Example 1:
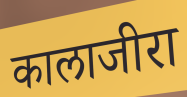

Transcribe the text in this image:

कालाजीरा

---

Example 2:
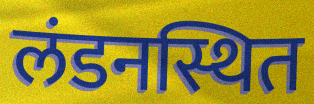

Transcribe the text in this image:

लंडनस्थित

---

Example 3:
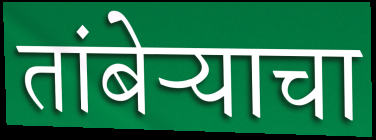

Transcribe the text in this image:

तांबेऱ्याचा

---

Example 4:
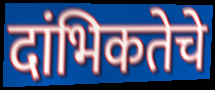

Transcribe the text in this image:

दांभिकतेचे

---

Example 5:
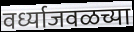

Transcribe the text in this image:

वर्ध्याजवळच्या